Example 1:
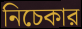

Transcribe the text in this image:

নিচেকার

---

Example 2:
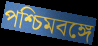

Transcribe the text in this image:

পশ্চিমবঙ্গে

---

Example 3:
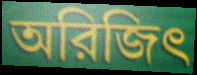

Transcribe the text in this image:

অরিজিৎ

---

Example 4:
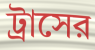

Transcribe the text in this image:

ট্রাসের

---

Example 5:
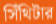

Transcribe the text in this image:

সিঁথিটার